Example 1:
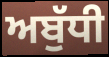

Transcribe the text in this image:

ਅਬੁੱਧੀ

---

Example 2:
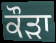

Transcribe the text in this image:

ਕੌਡ਼ਾ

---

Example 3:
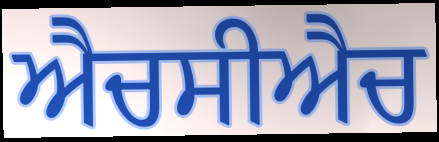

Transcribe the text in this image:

ਐਚਸੀਐਚ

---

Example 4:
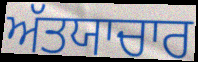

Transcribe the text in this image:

ਅੱਤਯਾਚਾਰ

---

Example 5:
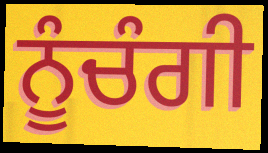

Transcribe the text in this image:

ਨੂੰਚੰਗੀ